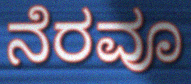
ನೆರವೂ